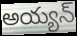
అయ్యన్